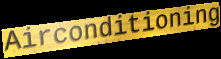
Airconditioning